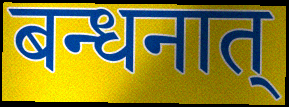
बन्धनात्